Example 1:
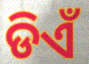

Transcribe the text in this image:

ଡିଏଁ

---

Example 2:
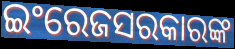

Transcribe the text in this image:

ଇଂରେଜସରକାରଙ୍କ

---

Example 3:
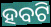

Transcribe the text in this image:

ହବଟି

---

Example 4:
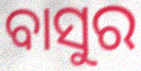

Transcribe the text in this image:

ବାସୁର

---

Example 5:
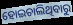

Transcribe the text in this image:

ହୋଇଚାଲିଥିବାରୁ